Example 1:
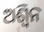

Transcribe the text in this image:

ଅଶ୍ଵିନ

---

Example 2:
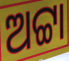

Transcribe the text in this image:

ଅଟ୍ଟା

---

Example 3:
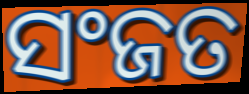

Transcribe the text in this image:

ସଂଜତ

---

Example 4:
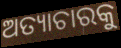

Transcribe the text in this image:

ଅତ୍ୟାଚାରକୁ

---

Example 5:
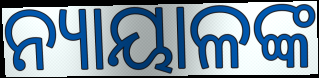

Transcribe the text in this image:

ନ୍ୟାୟାଳଙ୍କ